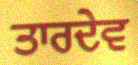
ਤਾਰਦੇਵ